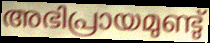
അഭിപ്രായമുണ്ടു്